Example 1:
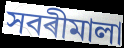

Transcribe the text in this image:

সবৰীমালা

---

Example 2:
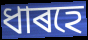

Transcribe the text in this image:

ধাৰহে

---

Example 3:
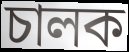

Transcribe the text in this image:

চালক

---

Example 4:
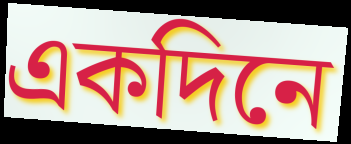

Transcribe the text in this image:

একদিনে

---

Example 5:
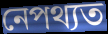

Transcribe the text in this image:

নেপথ্যত